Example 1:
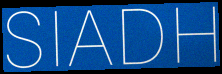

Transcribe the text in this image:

SIADH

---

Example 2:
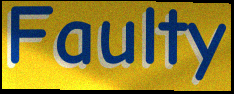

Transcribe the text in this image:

Faulty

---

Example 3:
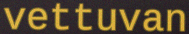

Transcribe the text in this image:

vettuvan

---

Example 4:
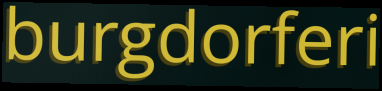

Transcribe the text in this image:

burgdorferi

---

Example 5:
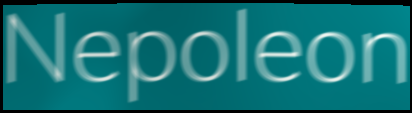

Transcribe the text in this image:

Nepoleon